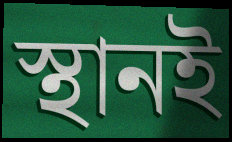
স্থানই